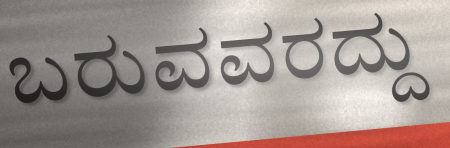
ಬರುವವರದ್ದು